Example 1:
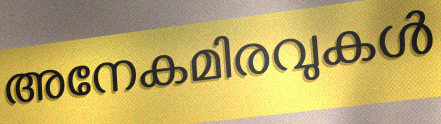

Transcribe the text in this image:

അനേകമിരവുകൾ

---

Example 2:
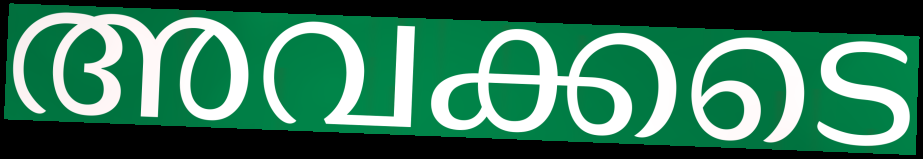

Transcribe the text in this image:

അവക്കടെ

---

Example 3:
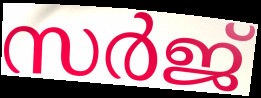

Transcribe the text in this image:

സർജ്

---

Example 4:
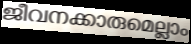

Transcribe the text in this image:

ജീവനക്കാരുമെല്ലാം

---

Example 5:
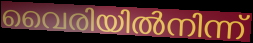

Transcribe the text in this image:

വൈരിയിൽനിന്ന്